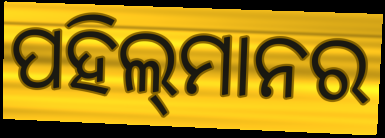
ପହିଲ୍‌ମାନର